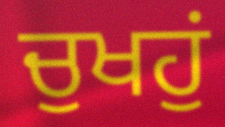
ਚੁਖਹੁਂ